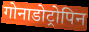
गोनाडोट्रोपिन